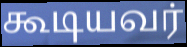
கூடியவர்